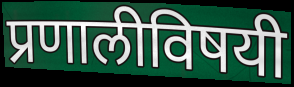
प्रणालीविषयी